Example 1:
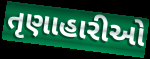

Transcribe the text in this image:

તૃણાહારીઓ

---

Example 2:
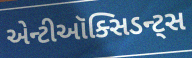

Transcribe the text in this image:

એન્ટીઑક્સિડન્ટ્સ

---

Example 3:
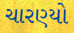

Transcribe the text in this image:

ચારણ્યો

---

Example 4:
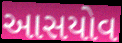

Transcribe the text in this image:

આસયોવ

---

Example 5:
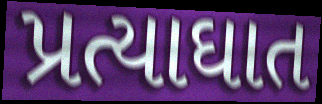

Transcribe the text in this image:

પ્રત્યાઘાત